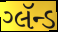
ગ્લૅન્ડ